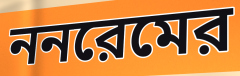
ননরেমের